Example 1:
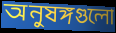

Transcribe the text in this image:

অনুষঙ্গগুলো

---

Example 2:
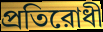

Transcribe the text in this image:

প্রতিরোধী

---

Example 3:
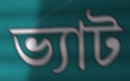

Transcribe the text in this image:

ভ্যাট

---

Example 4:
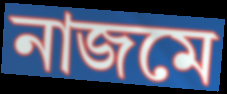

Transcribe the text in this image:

নাজমে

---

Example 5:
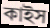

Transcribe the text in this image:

কাইস